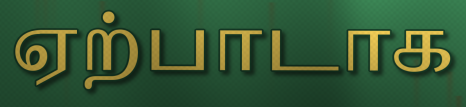
ஏற்பாடாக